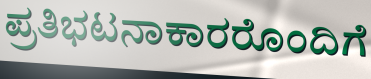
ಪ್ರತಿಭಟನಾಕಾರರೊಂದಿಗೆ